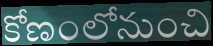
కోణంలోనుంచి